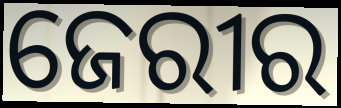
ଜେରୀର